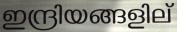
ഇന്ദ്രിയങ്ങളില്